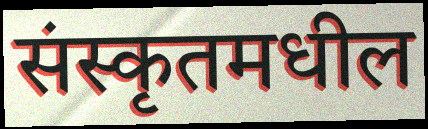
संस्कृतमधील